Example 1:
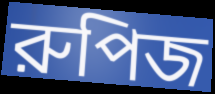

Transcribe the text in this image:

রুপিজ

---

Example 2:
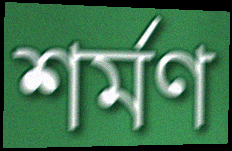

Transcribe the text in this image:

শর্মণ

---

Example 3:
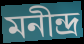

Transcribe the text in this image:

মনীন্দ্র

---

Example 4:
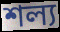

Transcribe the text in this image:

শল্য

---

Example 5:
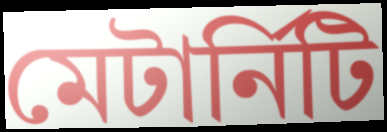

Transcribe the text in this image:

মেটার্নিটি